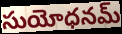
సుయోధనమ్